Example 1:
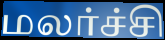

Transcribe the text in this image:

மலர்ச்சி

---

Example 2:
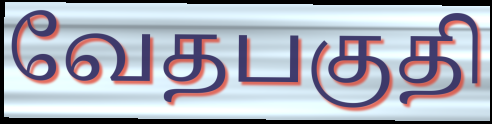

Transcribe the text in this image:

வேதபகுதி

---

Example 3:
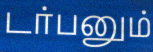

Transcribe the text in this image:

டர்பனும்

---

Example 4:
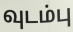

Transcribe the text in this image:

வுடம்பு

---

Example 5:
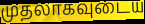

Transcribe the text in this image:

முதலாகவுடைய